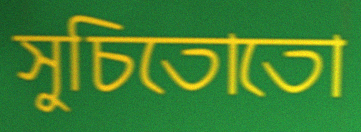
সুচিতোতো